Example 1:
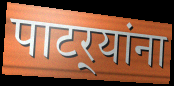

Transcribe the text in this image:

पाटर्यांना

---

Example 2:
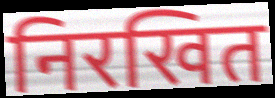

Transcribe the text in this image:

निरखित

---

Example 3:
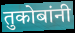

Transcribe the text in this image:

तुकोबांनी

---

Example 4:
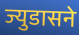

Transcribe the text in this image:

ज्युडासने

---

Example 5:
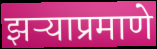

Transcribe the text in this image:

झऱ्याप्रमाणे